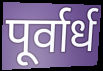
पूर्वार्ध